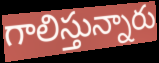
గాలిస్తున్నారు